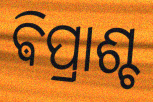
ଵିପ୍ରାଶ୍ଚ